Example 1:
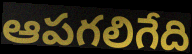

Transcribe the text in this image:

ఆపగలిగేది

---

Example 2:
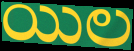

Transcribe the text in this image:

యిల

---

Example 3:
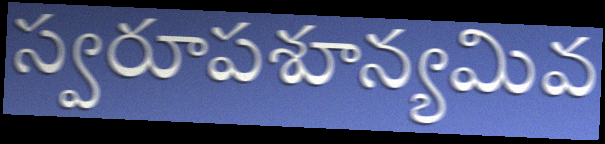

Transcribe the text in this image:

స్వరూపశూన్యమివ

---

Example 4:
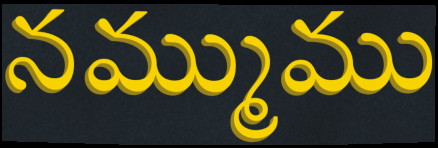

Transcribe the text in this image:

నమ్ముము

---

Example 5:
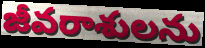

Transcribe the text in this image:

జీవరాశులను